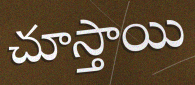
చూస్తాయి